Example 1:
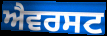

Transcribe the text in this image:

ਐਵਰਸਟ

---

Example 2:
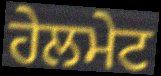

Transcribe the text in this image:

ਹੇਲਮੇਟ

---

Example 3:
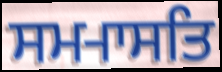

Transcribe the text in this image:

ਸਮ੍ਮਾਸਤਿ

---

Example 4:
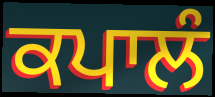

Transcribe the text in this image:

ਕਪਾਲੰ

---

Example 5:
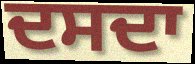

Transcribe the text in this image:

ਦਸਦਾ